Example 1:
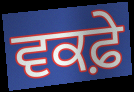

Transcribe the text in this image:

ਵਕਫ਼ੇ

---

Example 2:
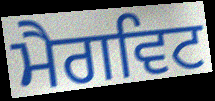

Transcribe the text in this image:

ਮੈਗਵਿਟ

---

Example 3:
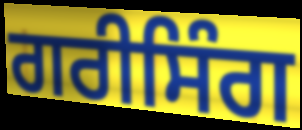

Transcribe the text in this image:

ਗਰੀਸਿੰਗ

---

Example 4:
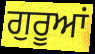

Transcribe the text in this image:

ਗੁਰੂਆਂ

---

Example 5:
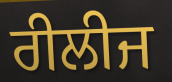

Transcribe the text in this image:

ਰੀਲੀਜ